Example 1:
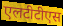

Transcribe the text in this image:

एलटीटीएस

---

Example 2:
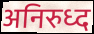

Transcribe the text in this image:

अनिरुध्द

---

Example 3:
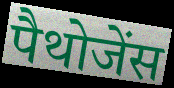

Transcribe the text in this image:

पैथोजेंस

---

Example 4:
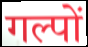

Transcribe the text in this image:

गल्पों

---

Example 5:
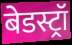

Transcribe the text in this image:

बेडस्ट्रॉ